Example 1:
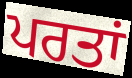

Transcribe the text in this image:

ਪਰਤਾਂ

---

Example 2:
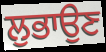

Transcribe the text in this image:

ਲੁਭਾਉਣ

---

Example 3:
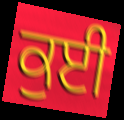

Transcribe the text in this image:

ਕੁਈ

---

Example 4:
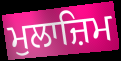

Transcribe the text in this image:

ਮੁਲਾਜ਼ਿਮ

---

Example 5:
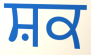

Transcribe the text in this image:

ਸ਼ਕ